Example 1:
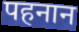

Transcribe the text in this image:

पहनान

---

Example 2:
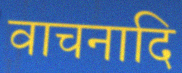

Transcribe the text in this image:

वाचनादि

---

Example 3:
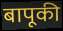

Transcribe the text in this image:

बापूकी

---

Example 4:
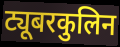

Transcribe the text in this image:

ट्यूबरकुलिन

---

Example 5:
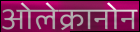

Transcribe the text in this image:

ओलेक्रानोन